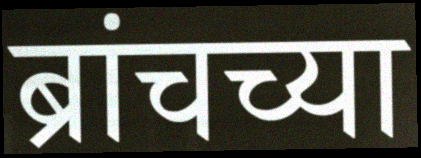
ब्रांचच्या